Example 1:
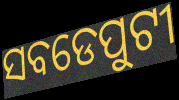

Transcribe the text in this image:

ସବଡେପୁଟୀ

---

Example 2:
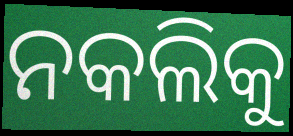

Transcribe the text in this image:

ନକଲିକୁ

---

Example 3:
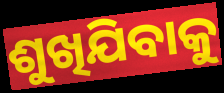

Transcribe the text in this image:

ଶୁଖିଯିବାକୁ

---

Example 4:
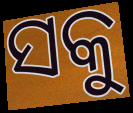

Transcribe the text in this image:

ସକୁ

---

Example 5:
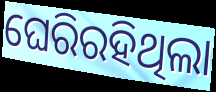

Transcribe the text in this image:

ଘେରିରହିଥିଲା